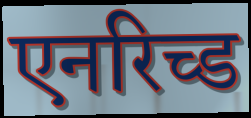
एनरिच्ड